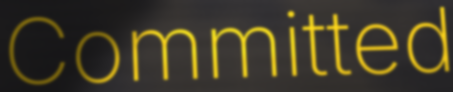
Committed